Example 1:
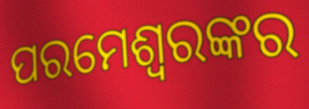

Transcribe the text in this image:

ପରମେଶ୍ୱରଙ୍କର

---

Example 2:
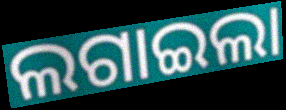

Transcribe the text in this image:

ଲଗାଇଲା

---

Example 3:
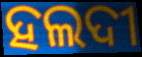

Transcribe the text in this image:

ହଲଦୀ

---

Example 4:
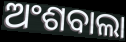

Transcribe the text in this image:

ଅଂଶବାଲା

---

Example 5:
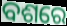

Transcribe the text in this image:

ବଶରେ